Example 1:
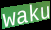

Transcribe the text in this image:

waku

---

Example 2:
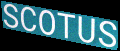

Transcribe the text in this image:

SCOTUS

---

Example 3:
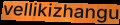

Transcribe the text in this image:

vellikizhangu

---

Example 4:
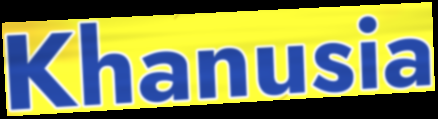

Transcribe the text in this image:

Khanusia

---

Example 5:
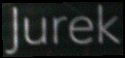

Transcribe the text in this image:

Jurek